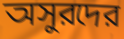
অসুরদের